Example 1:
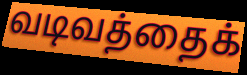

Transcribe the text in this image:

வடிவத்தைக்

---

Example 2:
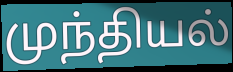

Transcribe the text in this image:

முந்தியல்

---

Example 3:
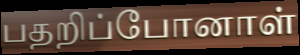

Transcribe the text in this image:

பதறிப்போனாள்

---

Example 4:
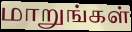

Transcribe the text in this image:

மாறுங்கள்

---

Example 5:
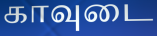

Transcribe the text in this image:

காவுடை